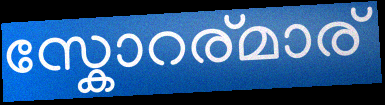
സ്കോറര്മാര്